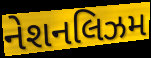
નેશનલિઝમ